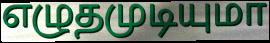
எழுதமுடியுமா